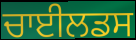
ਚਾਈਲਡਸ